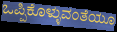
ಒಪ್ಪಿಕೊಳ್ಳುವಂತೆಯೂ